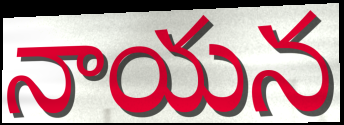
నాయన